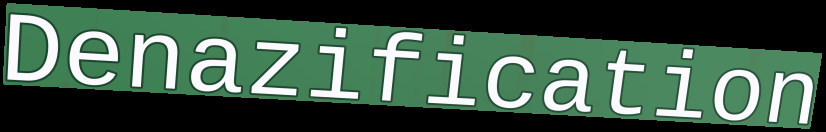
Denazification